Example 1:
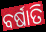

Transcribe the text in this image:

ବର୍ଷାତି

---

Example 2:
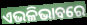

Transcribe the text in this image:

ଏଭଳିଭାବରେ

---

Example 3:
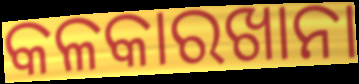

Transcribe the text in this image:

କଳକାରଖାନା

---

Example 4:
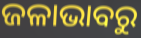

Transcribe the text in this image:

ଜଳାଭାବରୁ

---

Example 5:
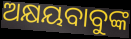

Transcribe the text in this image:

ଅକ୍ଷୟବାବୁଙ୍କ